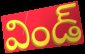
విండ్